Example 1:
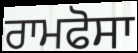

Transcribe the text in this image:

ਰਾਮਫੋਸਾ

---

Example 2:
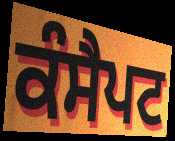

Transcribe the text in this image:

ਕੰਸੈਪਟ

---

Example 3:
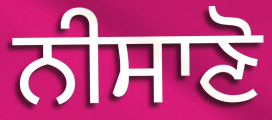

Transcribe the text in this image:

ਨੀਸਾਣੋ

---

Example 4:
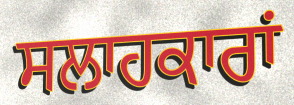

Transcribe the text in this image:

ਸਲਾਹਕਾਰਾਂ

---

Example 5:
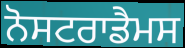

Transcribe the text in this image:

ਨੋਸਟਰਾਡੈਮਸ